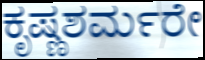
ಕೃಷ್ಣಶರ್ಮರೇ